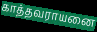
காத்தவராயனை